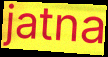
jatna